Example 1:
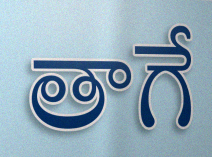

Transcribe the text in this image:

తాగే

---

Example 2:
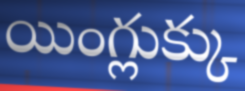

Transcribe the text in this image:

యింగ్లుక్కు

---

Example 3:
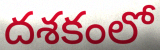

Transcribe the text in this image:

దశకంలో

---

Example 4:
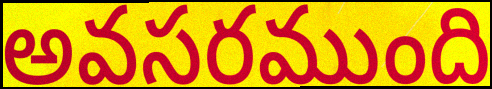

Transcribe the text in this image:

అవసరముంది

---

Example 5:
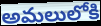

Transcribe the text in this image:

అమలులోకి